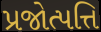
પ્રજોત્પત્તિ